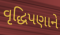
વૃદ્ધિપણાને